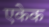
एकेक